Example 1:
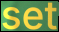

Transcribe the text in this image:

set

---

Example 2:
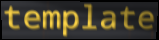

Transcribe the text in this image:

template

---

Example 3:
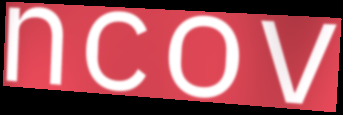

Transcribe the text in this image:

ncov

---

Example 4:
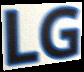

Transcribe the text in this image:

LG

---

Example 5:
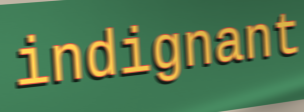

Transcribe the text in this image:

indignant